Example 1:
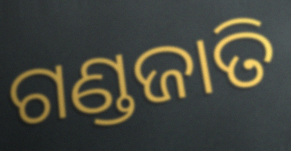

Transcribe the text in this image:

ଗଣ୍ଡଜାତି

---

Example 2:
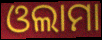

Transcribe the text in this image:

ଓଲାମା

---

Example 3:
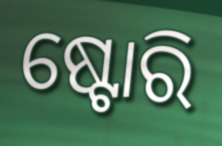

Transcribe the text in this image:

ଷ୍ଟୋରି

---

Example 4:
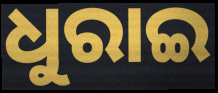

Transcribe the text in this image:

ଧୁରାଇ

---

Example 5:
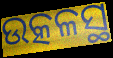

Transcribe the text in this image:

ଉତ୍କଳସ୍ଥ